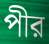
পীর